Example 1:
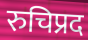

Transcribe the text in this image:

रुचिप्रद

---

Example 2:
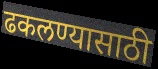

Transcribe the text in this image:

ढकलण्यासाठी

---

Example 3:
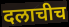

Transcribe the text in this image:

दलाचीच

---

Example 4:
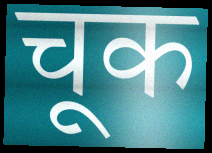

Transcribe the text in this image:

चूक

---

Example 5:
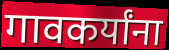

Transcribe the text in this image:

गावकर्यांना